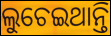
ଲୁଚେଇଥାନ୍ତି